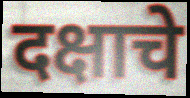
दक्षाचे